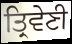
ਤ੍ਰਿਵੇਣੀ